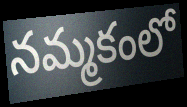
నమ్మకంలో